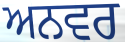
ਅਨਵਰ